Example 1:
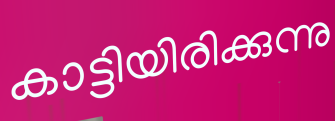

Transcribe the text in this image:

കാട്ടിയിരിക്കുന്നു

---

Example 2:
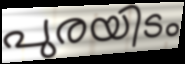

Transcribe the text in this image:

പുരയിടം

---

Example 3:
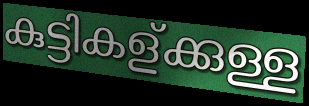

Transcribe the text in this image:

കുട്ടികള്ക്കുള്ള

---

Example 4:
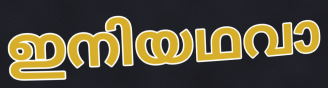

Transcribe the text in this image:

ഇനിയഥവാ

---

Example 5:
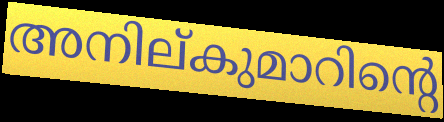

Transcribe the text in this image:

അനില്കുമാറിന്റെ